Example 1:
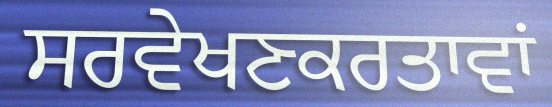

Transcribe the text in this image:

ਸਰਵੇਖਣਕਰਤਾਵਾਂ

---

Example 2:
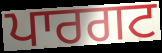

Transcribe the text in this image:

ਪਾਰਗਟ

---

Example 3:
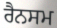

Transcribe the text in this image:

ਰੈਨਸਮ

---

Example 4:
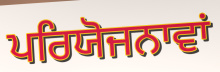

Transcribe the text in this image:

ਪਰਿਯੋਜਨਾਵਾਂ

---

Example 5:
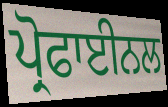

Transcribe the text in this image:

ਪ੍ਰੋਫਾਈਨਲ